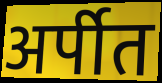
अर्पीत